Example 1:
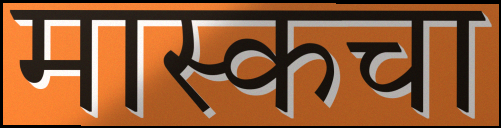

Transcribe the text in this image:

मास्कचा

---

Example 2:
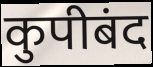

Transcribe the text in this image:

कुपीबंद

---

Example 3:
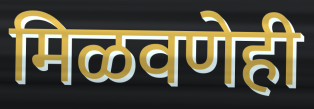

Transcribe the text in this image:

मिळवणेही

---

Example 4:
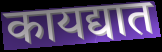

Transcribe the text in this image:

कायद्यात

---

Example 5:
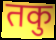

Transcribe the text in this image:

तकु